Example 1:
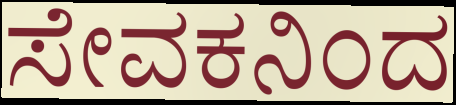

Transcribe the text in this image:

ಸೇವಕನಿಂದ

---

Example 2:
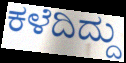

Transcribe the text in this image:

ಕಳೆದಿದ್ದು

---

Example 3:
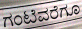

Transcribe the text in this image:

ಗಂಟೆವರೆಗೂ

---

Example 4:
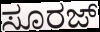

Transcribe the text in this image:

ಸೂರಜ್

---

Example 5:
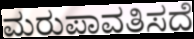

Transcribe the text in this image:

ಮರುಪಾವತಿಸದೆ